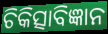
ଚିକିତ୍ସାବିଜ୍ଞାନ